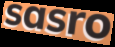
sasro